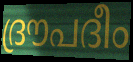
ദ്രൗപദീം